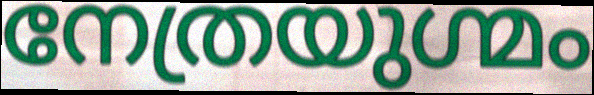
നേത്രയുഗ്മം